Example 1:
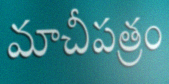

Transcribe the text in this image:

మాచీపత్రం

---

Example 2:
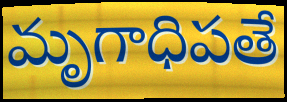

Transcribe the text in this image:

మృగాధిపతే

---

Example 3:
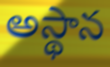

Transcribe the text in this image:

అస్థాన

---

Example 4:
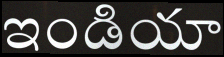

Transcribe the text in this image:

ఇండియా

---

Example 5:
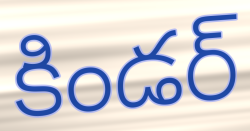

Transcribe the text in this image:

కిండర్